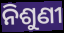
ନିଶୁଣୀ